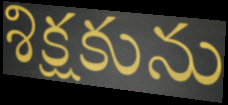
శిక్షకును